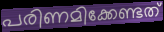
പരിണമിക്കേണ്ടത്